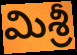
మిశ్రీ